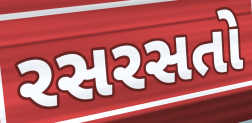
રસરસતો